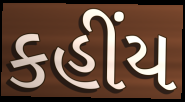
કહીંય